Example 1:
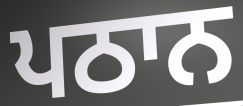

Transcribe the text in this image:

ਪਠਾਨ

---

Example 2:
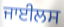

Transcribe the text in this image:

ਜਾਈਲਸ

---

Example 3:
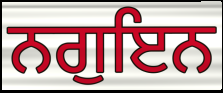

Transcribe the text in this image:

ਨਗੁਇਨ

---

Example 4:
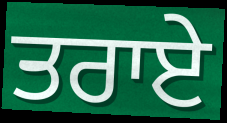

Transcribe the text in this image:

ਤਰਾਏ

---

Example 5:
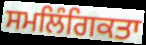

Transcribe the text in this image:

ਸਮਲਿੰਗਿਕਤਾ